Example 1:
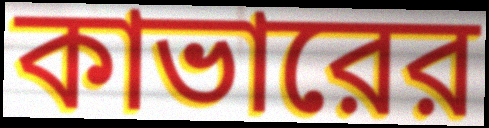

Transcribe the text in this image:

কাভারের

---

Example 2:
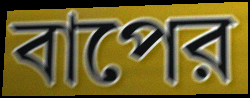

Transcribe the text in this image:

বাপের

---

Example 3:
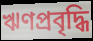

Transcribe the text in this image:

ঋণপ্রবৃদ্ধি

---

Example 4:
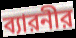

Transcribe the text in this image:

ব্যারনীর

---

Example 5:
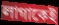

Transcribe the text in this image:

লাগাকেই